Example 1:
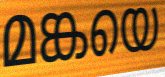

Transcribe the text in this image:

മങ്കയെ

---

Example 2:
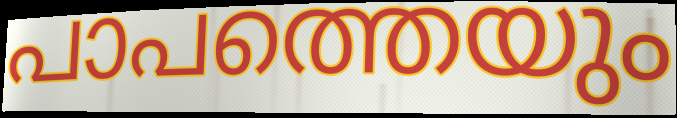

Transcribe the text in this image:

പാപത്തെയും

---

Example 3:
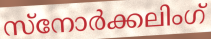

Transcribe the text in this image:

സ്നോർക്കലിംഗ്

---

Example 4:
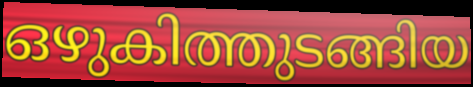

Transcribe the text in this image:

ഒഴുകിത്തുടങ്ങിയ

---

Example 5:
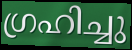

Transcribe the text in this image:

ഗ്രഹിച്ചു